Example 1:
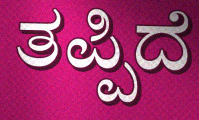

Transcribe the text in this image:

ತಪ್ಪಿದೆ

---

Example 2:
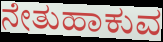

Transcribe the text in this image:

ನೇತುಹಾಕುವ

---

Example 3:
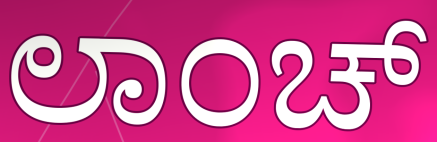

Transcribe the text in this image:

ಲಾಂಚ್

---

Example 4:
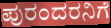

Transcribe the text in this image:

ಪುರಂದರನಿಗೆ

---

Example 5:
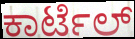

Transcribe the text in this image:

ಕಾರ್ಟೆಲ್